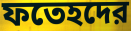
ফতেহদের